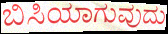
ಬಿಸಿಯಾಗುವುದು